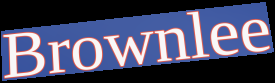
Brownlee